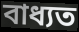
বাধ্যত